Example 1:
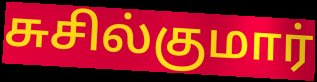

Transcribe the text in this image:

சுசில்குமார்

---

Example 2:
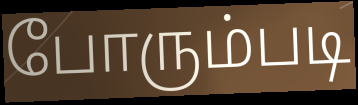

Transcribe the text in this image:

போரும்படி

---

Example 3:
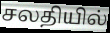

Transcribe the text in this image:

சலதியில்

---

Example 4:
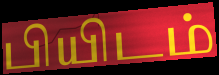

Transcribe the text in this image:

பியிடம்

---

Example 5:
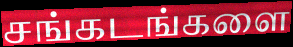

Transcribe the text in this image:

சங்கடங்களை